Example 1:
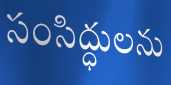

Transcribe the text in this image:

సంసిద్ధులను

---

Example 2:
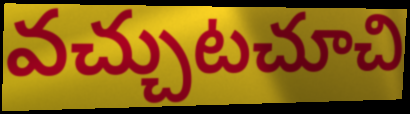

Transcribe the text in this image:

వచ్చుటచూచి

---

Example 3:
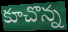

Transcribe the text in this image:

కూచొన్న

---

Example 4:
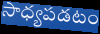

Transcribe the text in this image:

సాధ్యపడటం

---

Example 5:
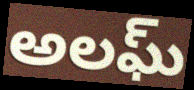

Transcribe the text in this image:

అలఘ్